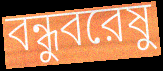
বন্ধুবরেষু